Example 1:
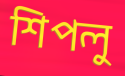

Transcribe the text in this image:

শিপলু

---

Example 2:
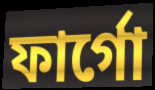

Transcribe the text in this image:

ফার্গো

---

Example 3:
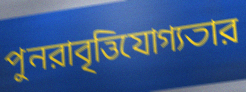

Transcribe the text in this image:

পুনরাবৃত্তিযোগ্যতার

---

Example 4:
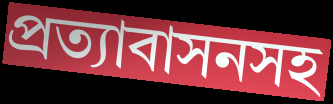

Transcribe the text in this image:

প্রত্যাবাসনসহ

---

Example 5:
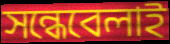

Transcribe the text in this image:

সন্ধেবেলাই